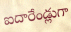
ఐదారేండ్లుగా